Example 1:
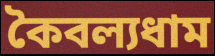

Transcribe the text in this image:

কৈবল্যধাম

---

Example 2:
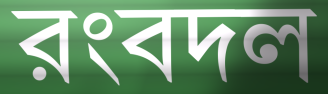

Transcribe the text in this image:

রংবদল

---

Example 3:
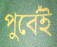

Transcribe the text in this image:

পুর্বেই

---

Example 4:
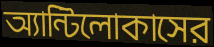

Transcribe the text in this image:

অ্যান্টিলোকাসের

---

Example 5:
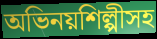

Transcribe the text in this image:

অভিনয়শিল্পীসহ